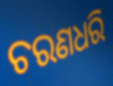
ଚରଣଧରି